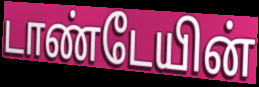
டாண்டேயின்